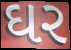
ઘર